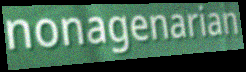
nonagenarian